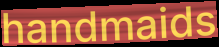
handmaids